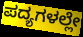
ಪದ್ಯಗಳಲ್ಲೇ